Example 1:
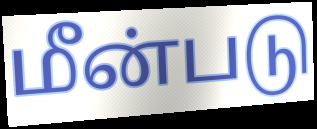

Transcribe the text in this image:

மீன்படு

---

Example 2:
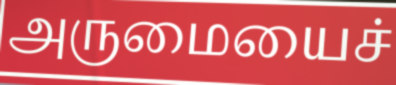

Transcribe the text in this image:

அருமையைச்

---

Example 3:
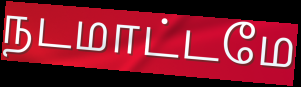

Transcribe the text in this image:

நடமாட்டமே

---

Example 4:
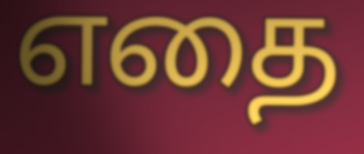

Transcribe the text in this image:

எதை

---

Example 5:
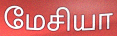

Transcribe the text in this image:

மேசியா